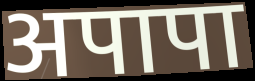
अपापा